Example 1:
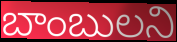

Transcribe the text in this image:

బాంబులని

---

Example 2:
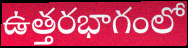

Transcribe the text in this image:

ఉత్తరభాగంలో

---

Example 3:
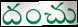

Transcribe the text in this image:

దంచు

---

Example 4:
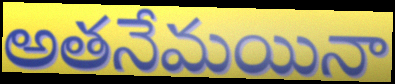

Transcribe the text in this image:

అతనేమయినా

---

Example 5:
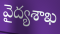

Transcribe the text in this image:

వైద్యశాఖ